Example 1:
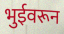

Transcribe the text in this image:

भुईवरून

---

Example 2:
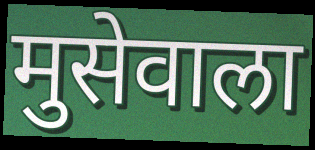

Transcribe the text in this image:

मुसेवाला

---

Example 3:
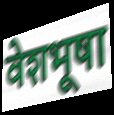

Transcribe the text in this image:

वेशभूषा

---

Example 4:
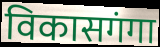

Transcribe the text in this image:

विकासगंगा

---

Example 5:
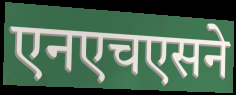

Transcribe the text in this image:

एनएचएसने